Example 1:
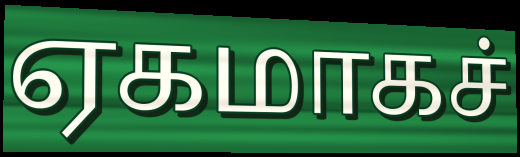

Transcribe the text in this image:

ஏகமாகச்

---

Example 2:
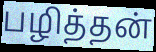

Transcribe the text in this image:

பழித்தன்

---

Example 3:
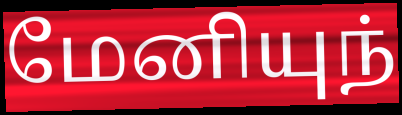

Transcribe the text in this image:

மேனியுந்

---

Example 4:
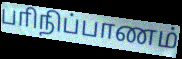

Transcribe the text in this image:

பரிநிப்பாணம்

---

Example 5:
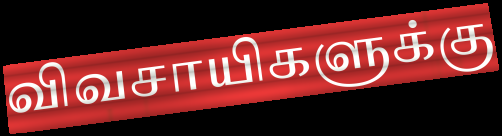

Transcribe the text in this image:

விவசாயிகளுக்கு